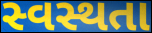
સ્વસ્થતા